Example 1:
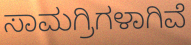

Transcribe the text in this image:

ಸಾಮಗ್ರಿಗಳಾಗಿವೆ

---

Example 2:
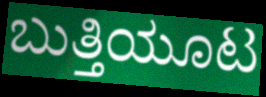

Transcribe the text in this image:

ಬುತ್ತಿಯೂಟ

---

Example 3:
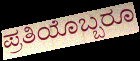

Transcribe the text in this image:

ಪ್ರತಿಯೊಬ್ಬರೂ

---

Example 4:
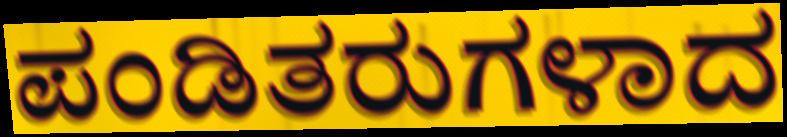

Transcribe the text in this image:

ಪಂಡಿತರುಗಳಾದ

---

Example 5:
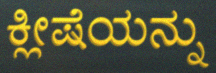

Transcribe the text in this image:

ಕ್ಲೀಷೆಯನ್ನು